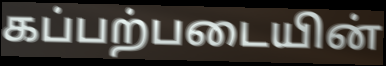
கப்பற்படையின்